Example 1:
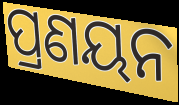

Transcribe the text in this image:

ପ୍ରଣୟନ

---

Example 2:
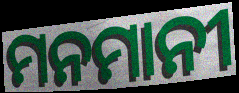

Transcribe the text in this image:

ମନମାନୀ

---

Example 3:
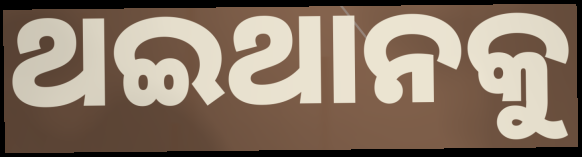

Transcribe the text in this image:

ଥଇଥାନକୁ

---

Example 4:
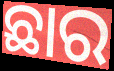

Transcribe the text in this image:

ଛାର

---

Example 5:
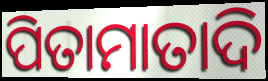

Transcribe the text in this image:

ପିତାମାତାଦି